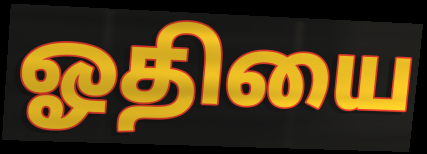
ஓதியை